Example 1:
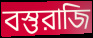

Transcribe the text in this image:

বস্তুরাজি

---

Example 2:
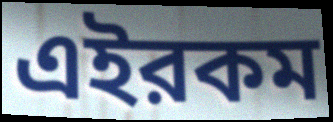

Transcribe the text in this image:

এইরকম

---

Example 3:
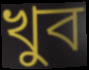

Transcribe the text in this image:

খুব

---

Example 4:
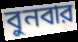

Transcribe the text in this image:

বুনবার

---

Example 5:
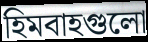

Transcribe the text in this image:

হিমবাহগুলো